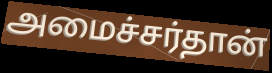
அமைச்சர்தான்